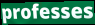
professes